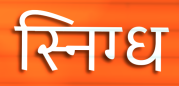
स्‍निग्ध